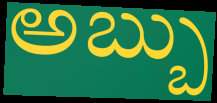
అబ్బు